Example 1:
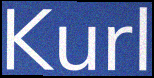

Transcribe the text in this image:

Kurl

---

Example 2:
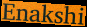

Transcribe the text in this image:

Enakshi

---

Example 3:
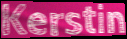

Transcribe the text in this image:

Kerstin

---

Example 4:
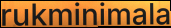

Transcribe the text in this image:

rukminimala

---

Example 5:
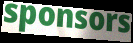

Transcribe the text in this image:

sponsors